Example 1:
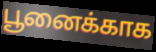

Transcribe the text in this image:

பூனைக்காக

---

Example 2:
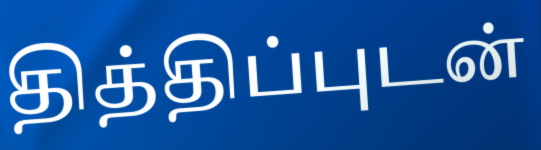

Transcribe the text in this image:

தித்திப்புடன்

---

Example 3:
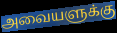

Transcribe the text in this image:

அவையளுக்கு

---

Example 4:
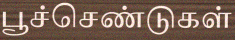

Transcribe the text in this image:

பூச்செண்டுகள்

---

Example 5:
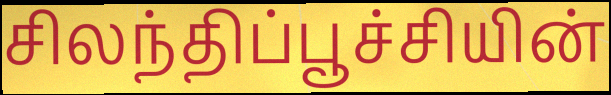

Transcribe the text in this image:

சிலந்திப்பூச்சியின்